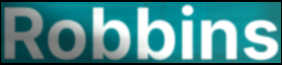
Robbins